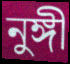
নুঙ্গী